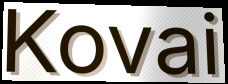
Kovai